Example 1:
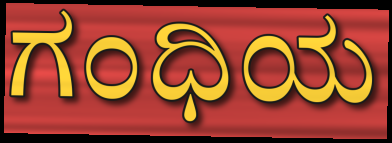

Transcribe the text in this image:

ಗಂಧಿಯ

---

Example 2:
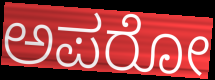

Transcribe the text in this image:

ಅಪರೋ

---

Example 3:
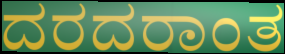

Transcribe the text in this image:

ದರದರಾಂತ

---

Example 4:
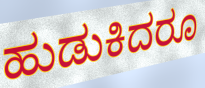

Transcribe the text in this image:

ಹುಡುಕಿದರೂ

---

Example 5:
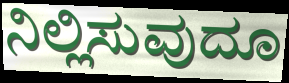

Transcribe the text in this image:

ನಿಲ್ಲಿಸುವುದೂ